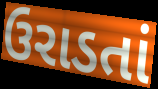
ઉરાડતાં